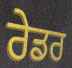
ਰੇਡਰ